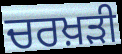
ਚਰਖ਼ੜੀ